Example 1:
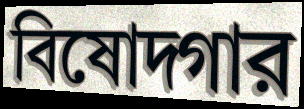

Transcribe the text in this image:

বিষোদ্গার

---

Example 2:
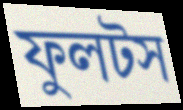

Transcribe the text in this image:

ফুলটস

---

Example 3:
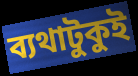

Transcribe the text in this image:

ব্যথাটুকুই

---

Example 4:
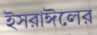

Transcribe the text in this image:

ইসরাঈলের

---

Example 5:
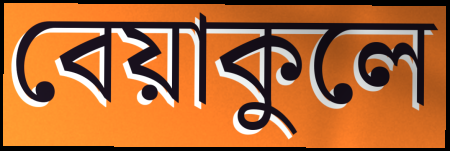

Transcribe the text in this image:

বেয়াকুলে